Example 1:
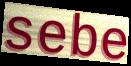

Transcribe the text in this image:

sebe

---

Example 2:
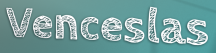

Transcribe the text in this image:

Venceslas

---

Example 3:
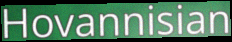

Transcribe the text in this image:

Hovannisian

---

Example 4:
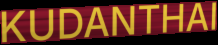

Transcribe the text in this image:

KUDANTHAI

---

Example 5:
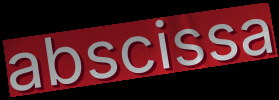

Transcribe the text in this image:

abscissa